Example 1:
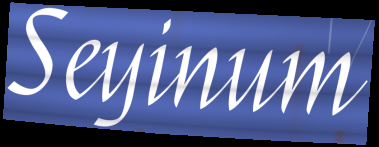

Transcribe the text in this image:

Seyinum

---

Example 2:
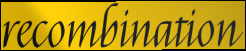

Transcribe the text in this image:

recombination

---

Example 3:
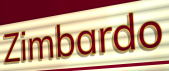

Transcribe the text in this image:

Zimbardo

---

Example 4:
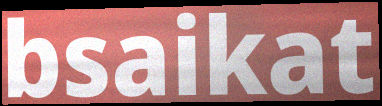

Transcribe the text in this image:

bsaikat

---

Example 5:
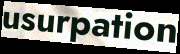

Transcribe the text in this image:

usurpation